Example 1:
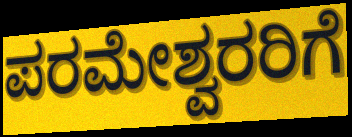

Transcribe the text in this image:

ಪರಮೇಶ್ವರರಿಗೆ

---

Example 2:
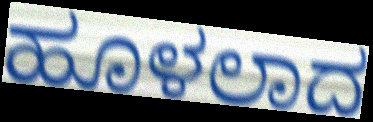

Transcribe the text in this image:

ಹೂಳಲಾದ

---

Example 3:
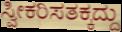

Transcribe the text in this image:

ಸ್ವೀಕರಿಸತಕ್ಕದ್ದು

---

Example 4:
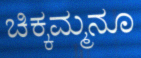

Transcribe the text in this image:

ಚಿಕ್ಕಮ್ಮನೂ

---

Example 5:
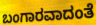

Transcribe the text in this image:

ಬಂಗಾರವಾದಂತೆ